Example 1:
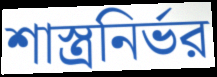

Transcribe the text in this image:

শাস্ত্রনির্ভর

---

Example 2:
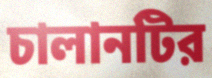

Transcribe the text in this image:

চালানটির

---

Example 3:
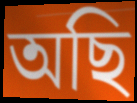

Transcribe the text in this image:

অছি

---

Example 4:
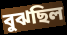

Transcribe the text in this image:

বুঝছিল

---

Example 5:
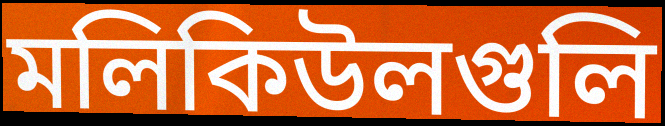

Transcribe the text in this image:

মলিকিউলগুলি